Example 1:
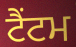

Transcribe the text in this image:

ਟੈਂਟਮ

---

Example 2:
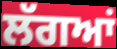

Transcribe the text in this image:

ਲੱਗਆਂ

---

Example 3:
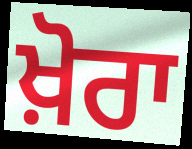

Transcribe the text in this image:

ਖ਼ੋਰਾ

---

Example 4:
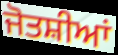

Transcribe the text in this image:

ਜੋਤਸ਼ੀਆਂ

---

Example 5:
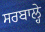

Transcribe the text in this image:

ਸਰਬਾਲ੍ਹੇ